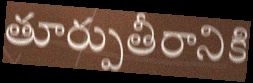
తూర్పుతీరానికి